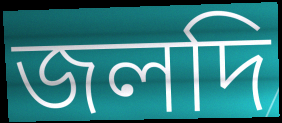
জলদি